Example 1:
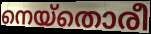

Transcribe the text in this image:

നെയ്തൊരീ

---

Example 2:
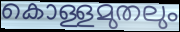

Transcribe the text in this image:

കൊള്ളമുതലും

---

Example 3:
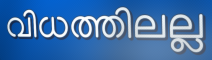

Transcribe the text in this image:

വിധത്തിലല്ല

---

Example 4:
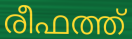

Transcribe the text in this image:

രീഫത്ത്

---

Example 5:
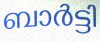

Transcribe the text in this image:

ബാർട്ടി